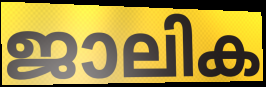
ജാലിക